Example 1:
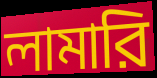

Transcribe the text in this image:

লামারি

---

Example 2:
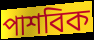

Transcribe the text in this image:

পাশবিক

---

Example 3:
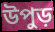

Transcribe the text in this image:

উপুড়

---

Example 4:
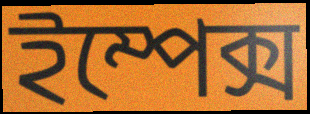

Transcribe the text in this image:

ইম্পেক্স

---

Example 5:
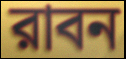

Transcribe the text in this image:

রাবন